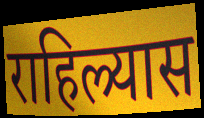
राहिल्यास